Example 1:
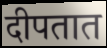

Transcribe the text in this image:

दीपतात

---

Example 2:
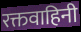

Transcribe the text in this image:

रक्तवाहिनी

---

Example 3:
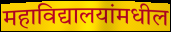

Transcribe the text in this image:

महाविद्यालयांमधील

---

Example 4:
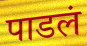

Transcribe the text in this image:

पाडलं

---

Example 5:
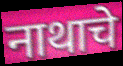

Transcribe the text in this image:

नाथाचे